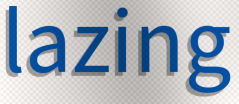
lazing